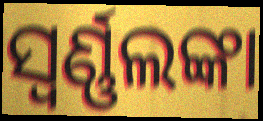
ସ୍ବର୍ଣ୍ଣଲଙ୍କା